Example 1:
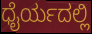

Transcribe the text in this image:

ಧೈರ್ಯದಲ್ಲಿ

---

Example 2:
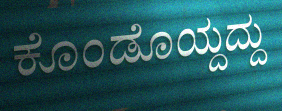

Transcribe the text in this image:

ಕೊಂಡೊಯ್ದದ್ದು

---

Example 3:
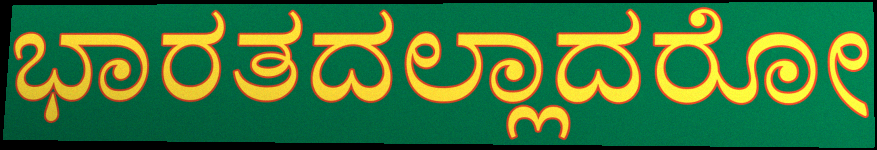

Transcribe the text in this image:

ಭಾರತದಲ್ಲಾದರೋ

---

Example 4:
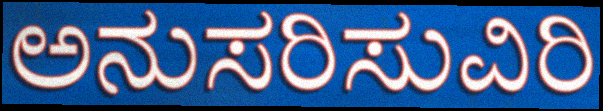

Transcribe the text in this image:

ಅನುಸರಿಸುವಿರಿ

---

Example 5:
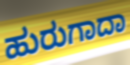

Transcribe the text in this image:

ಹುರುಗಾದಾ